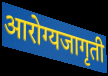
आरोग्यजागृती